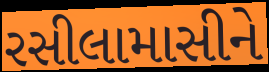
રસીલામાસીને